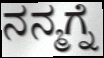
ನನ್ಮಗ್ನೆ